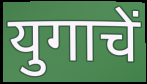
युगाचें